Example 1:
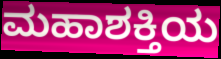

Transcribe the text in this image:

ಮಹಾಶಕ್ತಿಯ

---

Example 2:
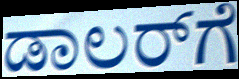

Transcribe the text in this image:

ಡಾಲರ್‌ಗೆ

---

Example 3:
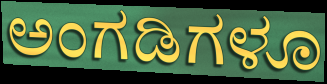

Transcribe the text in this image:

ಅಂಗಡಿಗಳೂ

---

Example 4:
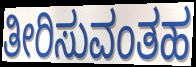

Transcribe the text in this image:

ತೀರಿಸುವಂತಹ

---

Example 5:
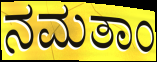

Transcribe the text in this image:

ನಮತಾಂ